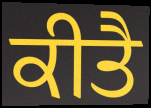
ਕੀਤੈ